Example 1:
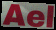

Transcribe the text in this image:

Ael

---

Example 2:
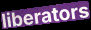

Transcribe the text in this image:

liberators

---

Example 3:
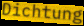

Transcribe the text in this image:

Dichtung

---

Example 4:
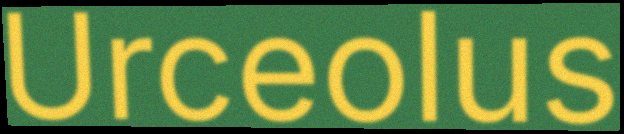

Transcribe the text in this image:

Urceolus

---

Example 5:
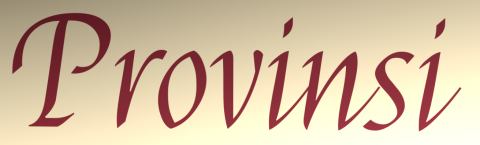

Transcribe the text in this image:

Provinsi